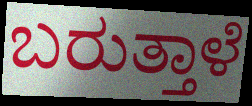
ಬರುತ್ತಾಳೆ